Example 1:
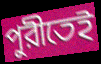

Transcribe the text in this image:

পুরীতেই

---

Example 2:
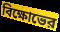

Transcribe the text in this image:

বিক্ষোভের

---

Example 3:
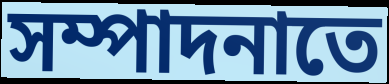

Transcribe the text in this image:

সম্পাদনাতে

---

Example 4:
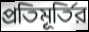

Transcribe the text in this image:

প্রতিমূর্তির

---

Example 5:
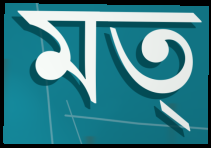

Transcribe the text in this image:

মত্